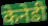
केनेडी